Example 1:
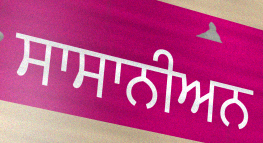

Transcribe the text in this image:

ਸਾਸਾਨੀਅਨ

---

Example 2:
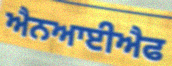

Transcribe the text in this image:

ਐਨਆਈਐਫ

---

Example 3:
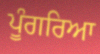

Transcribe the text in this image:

ਪੂੰਗਰਿਆ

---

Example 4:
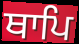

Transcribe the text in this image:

ਥਾਪਿ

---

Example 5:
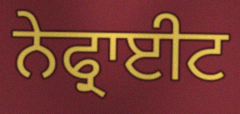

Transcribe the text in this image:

ਨੇਫ੍ਰਾਈਟ